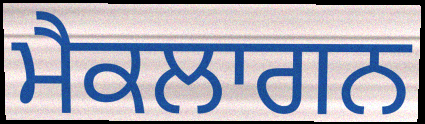
ਮੈਕਲਾਗਨ